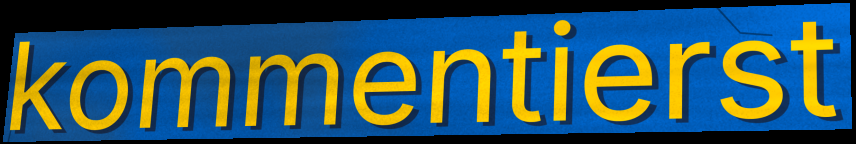
kommentierst